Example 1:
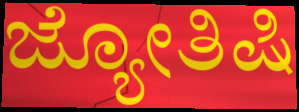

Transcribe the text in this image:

ಜ್ಯೋತಿಷಿ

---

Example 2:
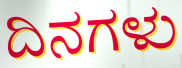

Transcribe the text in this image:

ದಿನಗಳು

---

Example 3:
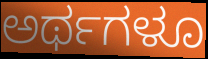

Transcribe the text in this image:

ಅರ್ಥಗಳೂ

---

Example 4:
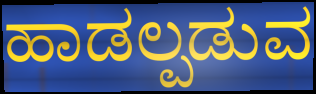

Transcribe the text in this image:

ಹಾಡಲ್ಪಡುವ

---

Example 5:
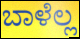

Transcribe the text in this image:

ಬಾಳೆಲ್ಲ